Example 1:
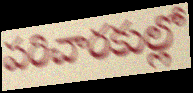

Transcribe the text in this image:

పరిచారకుల్లో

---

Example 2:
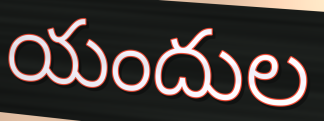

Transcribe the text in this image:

యందుల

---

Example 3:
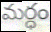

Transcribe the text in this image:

మర్ధం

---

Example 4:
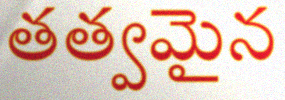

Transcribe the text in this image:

తత్వమైన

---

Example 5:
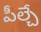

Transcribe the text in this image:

పీల్చే